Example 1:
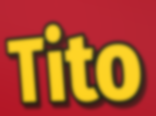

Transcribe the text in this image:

Tito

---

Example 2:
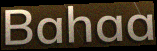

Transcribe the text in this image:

Bahaa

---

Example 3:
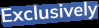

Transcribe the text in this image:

Exclusively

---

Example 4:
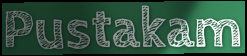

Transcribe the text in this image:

Pustakam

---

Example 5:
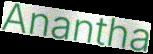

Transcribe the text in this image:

Anantha